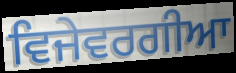
ਵਿਜੇਵਰਗੀਆ